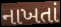
નાખતાં